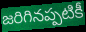
జరిగినప్పటికీ